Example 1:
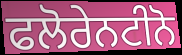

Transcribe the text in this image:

ਫਲੋਰੇਨਟੀਨੋ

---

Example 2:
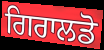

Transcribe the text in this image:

ਗਿਰਾਲਡੋ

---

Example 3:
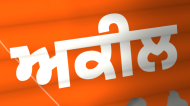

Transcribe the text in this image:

ਅਕੀਲ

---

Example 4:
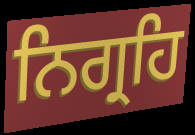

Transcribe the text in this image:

ਨਿਗ੍ਰਹਿ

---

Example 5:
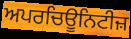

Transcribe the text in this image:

ਅਪਰਚਿਊਨਿਟੀਜ਼